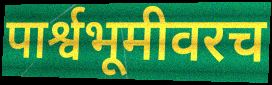
पार्श्वभूमीवरच